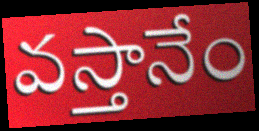
వస్తానేం